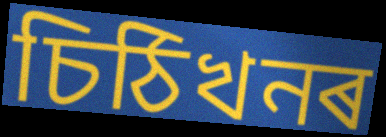
চিঠিখনৰ